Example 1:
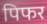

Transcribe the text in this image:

पिफर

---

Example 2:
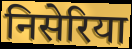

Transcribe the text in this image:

निसेरिया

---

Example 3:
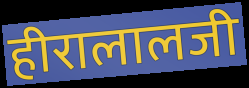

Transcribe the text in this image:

हीरालालजी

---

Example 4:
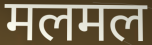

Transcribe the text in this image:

मलमल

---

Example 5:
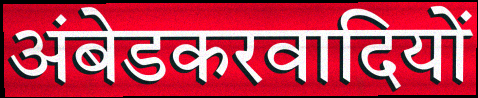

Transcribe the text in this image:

अंबेडकरवादियों